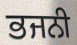
ਭਜਨੀ